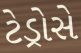
ટેડ્રોસે